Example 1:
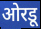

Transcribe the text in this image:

ओरडू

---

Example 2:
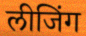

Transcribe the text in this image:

लीजिंग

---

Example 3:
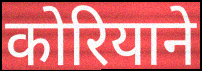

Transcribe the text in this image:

कोरियाने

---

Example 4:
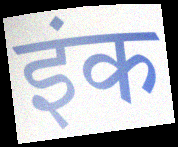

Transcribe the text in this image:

इंक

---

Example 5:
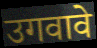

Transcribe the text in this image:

उगवावे